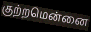
குற்றமென்னை